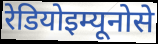
रेडियोइम्यूनोसे